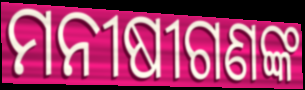
ମନୀଷୀଗଣଙ୍କ